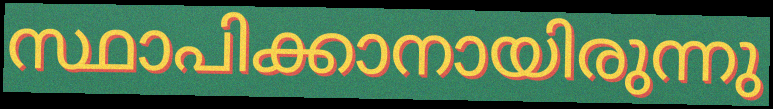
സ്ഥാപിക്കാനായിരുന്നു